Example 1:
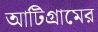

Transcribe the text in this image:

আটিগ্রামের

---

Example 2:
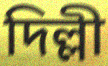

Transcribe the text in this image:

দিল্লী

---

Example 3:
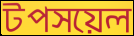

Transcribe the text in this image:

টপসয়েল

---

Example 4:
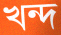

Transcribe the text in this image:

খন্দ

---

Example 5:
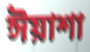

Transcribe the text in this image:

ঈয়াশা